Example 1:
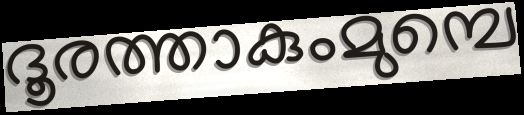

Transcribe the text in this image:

ദൂരത്താകുംമുമ്പെ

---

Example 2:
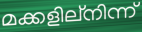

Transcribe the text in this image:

മക്കളില്നിന്ന്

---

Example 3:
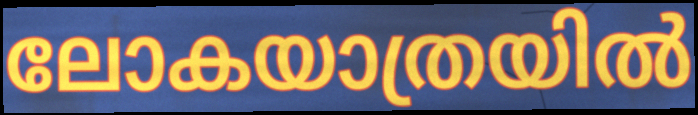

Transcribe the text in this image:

ലോകയാത്രയിൽ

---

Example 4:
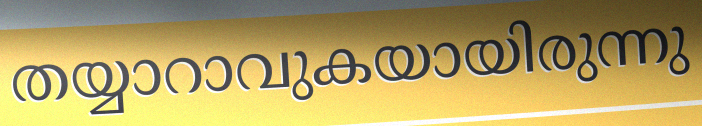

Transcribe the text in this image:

തയ്യാറാവുകയായിരുന്നു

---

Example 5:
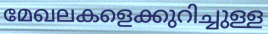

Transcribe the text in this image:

മേഖലകളെക്കുറിച്ചുള്ള